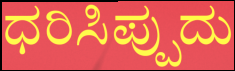
ಧರಿಸಿಪ್ಪುದು